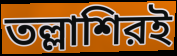
তল্লাশিরই